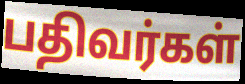
பதிவர்கள்